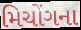
મિચોંગના